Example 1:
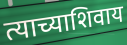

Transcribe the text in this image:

त्याच्याशिवाय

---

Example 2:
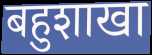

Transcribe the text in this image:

बहुशाखा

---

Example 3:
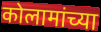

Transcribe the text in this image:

कोलामांच्या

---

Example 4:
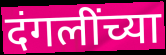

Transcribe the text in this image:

दंगलींच्या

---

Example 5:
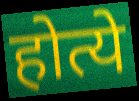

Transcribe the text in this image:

होत्ये